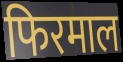
फिरमाल